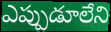
ఎప్పుడూలేని